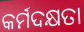
କର୍ମଦକ୍ଷତା